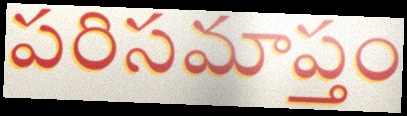
పరిసమాప్తం